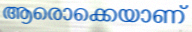
ആരൊക്കെയാണ്